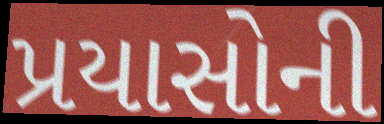
પ્રયાસોની